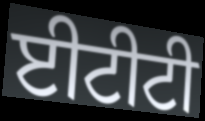
ਈਟੀਟੀ